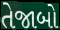
તેજાબો